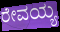
ರೇವಯ್ಯ